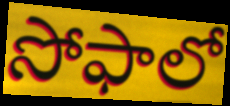
సోఫాలో